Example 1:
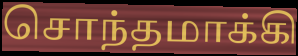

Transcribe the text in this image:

சொந்தமாக்கி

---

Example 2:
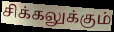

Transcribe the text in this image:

சிக்கலுக்கும்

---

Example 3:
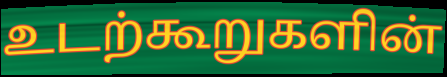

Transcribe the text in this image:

உடற்கூறுகளின்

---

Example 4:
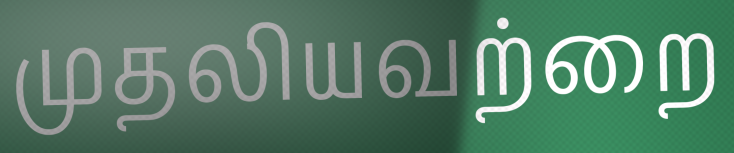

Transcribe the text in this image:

முதலியவற்றை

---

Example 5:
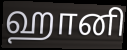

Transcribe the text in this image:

ஹானி